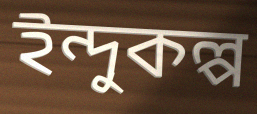
ইন্দুকল্প